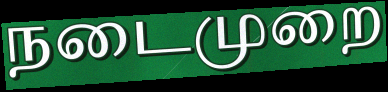
நடைமுறை